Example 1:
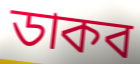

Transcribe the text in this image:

ডাকব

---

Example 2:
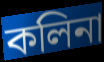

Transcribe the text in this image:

কলিনা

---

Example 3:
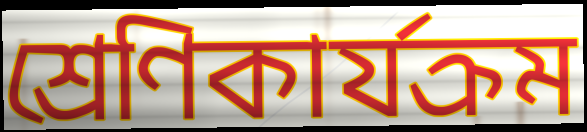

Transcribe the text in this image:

শ্রেণিকার্যক্রম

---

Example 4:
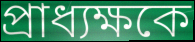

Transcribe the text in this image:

প্রাধ্যক্ষকে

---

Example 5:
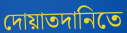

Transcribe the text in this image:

দোয়াতদানিতে